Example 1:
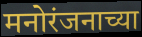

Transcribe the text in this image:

मनोरंजनाच्या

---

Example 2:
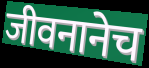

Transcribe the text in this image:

जीवनानेच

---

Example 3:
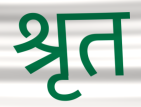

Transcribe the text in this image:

श्रृत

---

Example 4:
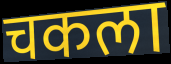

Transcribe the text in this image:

चकला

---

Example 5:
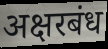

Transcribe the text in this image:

अक्षरबंध